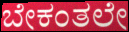
ಬೇಕಂತಲೇ